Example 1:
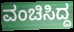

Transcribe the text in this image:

ವಂಚಿಸಿದ್ದ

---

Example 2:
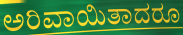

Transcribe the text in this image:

ಅರಿವಾಯಿತಾದರೂ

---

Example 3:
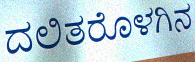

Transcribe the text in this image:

ದಲಿತರೊಳಗಿನ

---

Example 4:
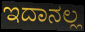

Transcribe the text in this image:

ಇದಾನಲ್ಲ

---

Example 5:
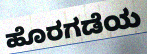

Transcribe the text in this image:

ಹೊರಗಡೆಯ